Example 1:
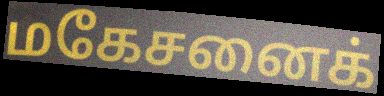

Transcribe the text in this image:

மகேசனைக்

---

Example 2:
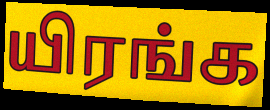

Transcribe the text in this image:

யிரங்க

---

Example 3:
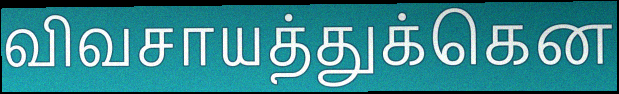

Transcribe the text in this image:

விவசாயத்துக்கென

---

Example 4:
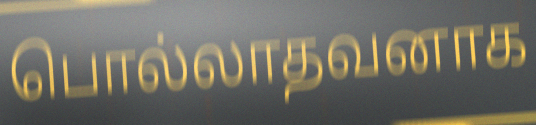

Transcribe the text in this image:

பொல்லாதவனாக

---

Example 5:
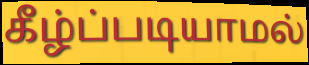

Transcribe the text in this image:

கீழ்ப்படியாமல்